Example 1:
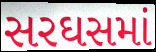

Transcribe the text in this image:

સરઘસમાં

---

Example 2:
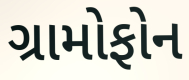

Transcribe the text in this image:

ગ્રામોફોન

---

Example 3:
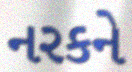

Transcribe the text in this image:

નરકને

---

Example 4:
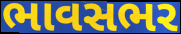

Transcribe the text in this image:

ભાવસભર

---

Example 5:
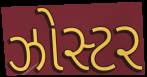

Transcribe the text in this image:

ઝોસ્ટર